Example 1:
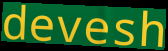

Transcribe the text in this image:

devesh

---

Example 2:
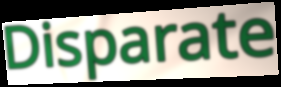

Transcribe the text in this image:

Disparate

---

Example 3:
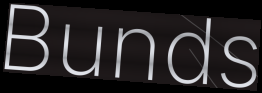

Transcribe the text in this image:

Bunds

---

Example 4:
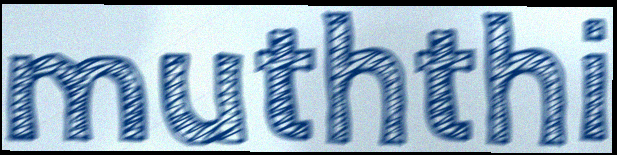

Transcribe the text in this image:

muththi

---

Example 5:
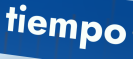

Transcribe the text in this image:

tiempo